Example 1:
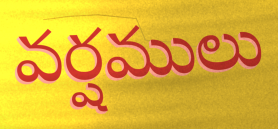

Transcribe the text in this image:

వర్షములు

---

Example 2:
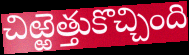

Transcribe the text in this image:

చిఱ్ఱెత్తుకొచ్చింది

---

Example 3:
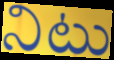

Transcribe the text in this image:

నిటు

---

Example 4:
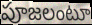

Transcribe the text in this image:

పూజలంటూ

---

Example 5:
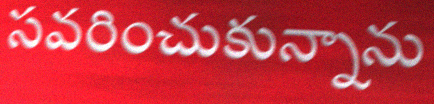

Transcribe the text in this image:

సవరించుకున్నాను